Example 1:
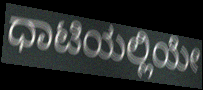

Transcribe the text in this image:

ಧಾಟಿಯಲ್ಲಿಯೇ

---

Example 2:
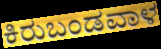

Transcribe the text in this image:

ಕಿರುಬಂಡವಾಳ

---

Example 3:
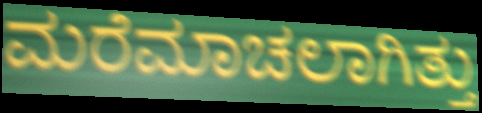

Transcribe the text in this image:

ಮರೆಮಾಚಲಾಗಿತ್ತು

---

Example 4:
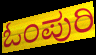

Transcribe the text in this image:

ಓಂಪುರಿ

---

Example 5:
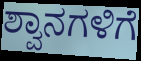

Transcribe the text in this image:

ಶ್ವಾನಗಳಿಗೆ